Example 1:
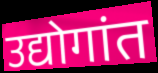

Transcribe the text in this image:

उद्योगांत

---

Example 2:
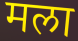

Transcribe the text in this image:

मला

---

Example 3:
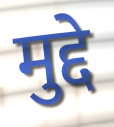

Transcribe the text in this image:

मुद्दे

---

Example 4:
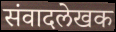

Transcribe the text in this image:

संवादलेखक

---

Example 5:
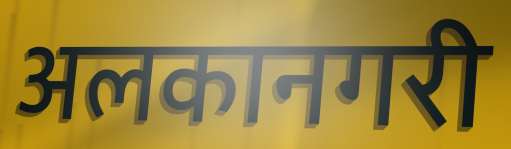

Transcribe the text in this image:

अलकानगरी